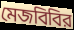
মেজবিবির